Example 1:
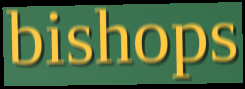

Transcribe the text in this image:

bishops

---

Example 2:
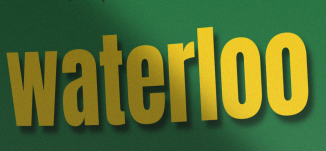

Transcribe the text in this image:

waterloo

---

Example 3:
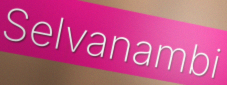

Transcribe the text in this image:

Selvanambi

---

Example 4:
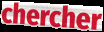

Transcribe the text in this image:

chercher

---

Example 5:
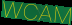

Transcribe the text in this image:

WCAM